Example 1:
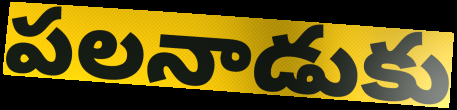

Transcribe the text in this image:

పలనాడుకు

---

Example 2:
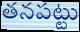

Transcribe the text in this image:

తనపట్టు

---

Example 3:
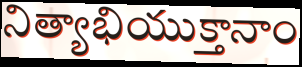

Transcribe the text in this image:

నిత్యాభియుక్తానాం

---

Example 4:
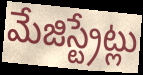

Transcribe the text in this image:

మేజిస్ట్రేట్లు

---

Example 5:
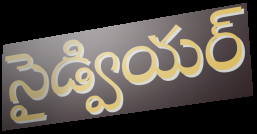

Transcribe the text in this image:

సైడ్వియర్